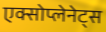
एक्सोप्लेनेट्स